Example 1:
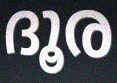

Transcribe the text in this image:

ദൂര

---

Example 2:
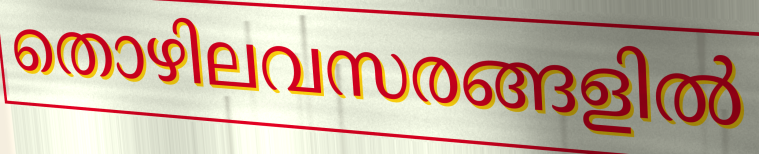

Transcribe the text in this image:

തൊഴിലവസരങ്ങളിൽ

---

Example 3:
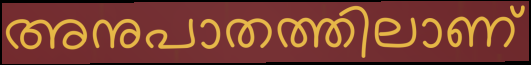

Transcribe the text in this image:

അനുപാതത്തിലാണ്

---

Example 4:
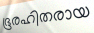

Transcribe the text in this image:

ഭൂരഹിതരായ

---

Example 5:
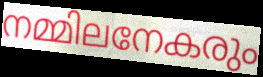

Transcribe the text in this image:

നമ്മിലനേകരും